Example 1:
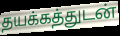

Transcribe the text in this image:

தயக்கத்துடன்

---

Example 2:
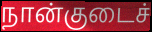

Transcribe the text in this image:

நான்குடைச்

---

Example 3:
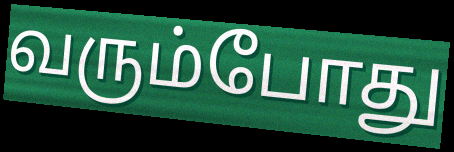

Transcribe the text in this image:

வரும்போது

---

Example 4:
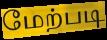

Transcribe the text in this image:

மேற்படி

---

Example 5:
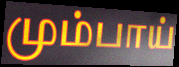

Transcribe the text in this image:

மும்பாய்